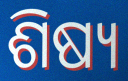
ଶିଷ୍ୟ